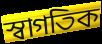
স্বাগতিক